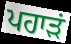
ਪਹਾੜਂ